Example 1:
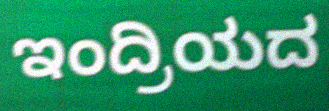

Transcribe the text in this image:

ಇಂದ್ರಿಯದ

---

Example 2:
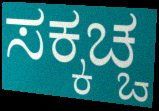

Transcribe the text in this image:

ಸಕ್ಕಚ್ಚ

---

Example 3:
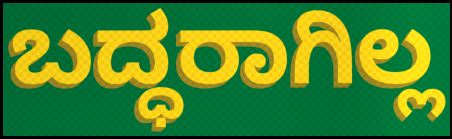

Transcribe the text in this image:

ಬದ್ಧರಾಗಿಲ್ಲ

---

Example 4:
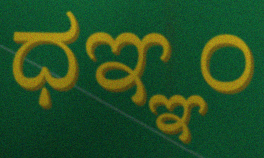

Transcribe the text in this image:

ಧಞ್ಞಂ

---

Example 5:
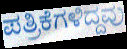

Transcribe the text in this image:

ಪತ್ರಿಕೆಗಳಿದ್ದವು